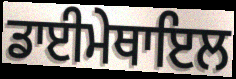
ਡਾਈਮੇਥਾਇਲ